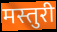
मस्तुरी